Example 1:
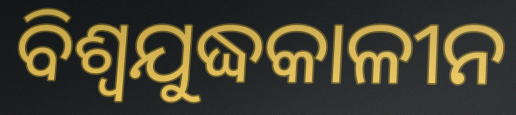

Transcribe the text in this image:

ବିଶ୍ୱଯୁଦ୍ଧକାଳୀନ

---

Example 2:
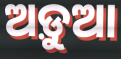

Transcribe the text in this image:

ଅଡ଼ୁଆ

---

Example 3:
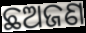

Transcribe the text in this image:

ଛଅଜଣ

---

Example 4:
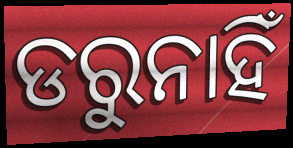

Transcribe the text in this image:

ଡରୁନାହିଁ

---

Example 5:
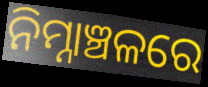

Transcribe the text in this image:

ନିମ୍ନାଞ୍ଚଳରେ